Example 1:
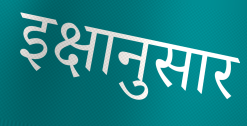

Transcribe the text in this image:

इक्षानुसार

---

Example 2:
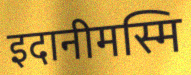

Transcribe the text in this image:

इदानीमस्मि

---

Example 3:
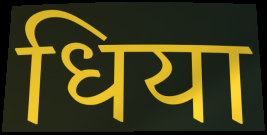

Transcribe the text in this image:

धिया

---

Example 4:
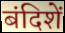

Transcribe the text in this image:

बंदिशें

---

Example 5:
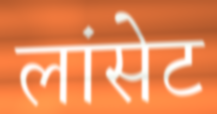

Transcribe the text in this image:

लांसेट